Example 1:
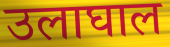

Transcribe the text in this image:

उलाघाल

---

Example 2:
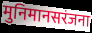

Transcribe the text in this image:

मुनिमानसरंजना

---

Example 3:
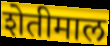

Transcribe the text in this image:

शेतीमाल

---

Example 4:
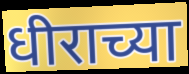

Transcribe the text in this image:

धीराच्या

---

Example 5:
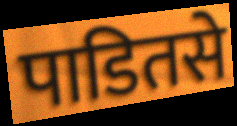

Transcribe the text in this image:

पाडितसे